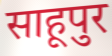
साहूपुर